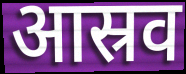
आस्रव